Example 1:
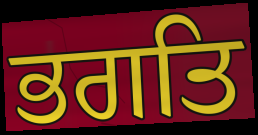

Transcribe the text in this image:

ਭਗਤਿ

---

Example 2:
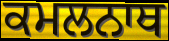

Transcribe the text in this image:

ਕਮਲਨਾਥ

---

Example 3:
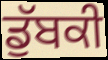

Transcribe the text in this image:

ਡੁੱਬਕੀ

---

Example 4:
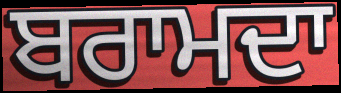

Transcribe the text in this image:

ਬਰਾਮਦਾ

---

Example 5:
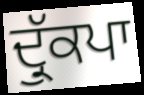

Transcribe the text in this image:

ਦ੍ਰੁੱਕਪਾ